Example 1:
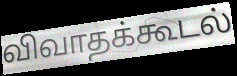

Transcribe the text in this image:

விவாதக்கூடல்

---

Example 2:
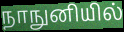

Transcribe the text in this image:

நாநுனியில்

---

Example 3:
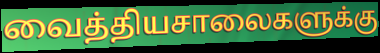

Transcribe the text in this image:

வைத்தியசாலைகளுக்கு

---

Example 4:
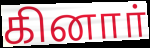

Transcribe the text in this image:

கினார்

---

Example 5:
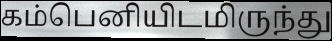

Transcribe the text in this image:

கம்பெனியிடமிருந்து